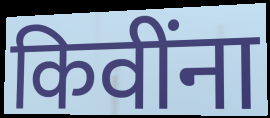
किवींना